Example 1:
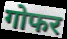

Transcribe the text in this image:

गोफर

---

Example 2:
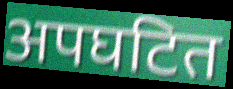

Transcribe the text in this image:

अपघटित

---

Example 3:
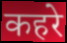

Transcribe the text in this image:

कहरे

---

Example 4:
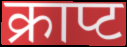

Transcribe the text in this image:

क्राप्ट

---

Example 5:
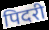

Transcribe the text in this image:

पिदरी